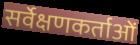
सर्वेक्षणकर्ताओं